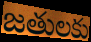
జతులకు